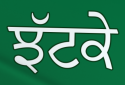
ਝੱਟਕੇ